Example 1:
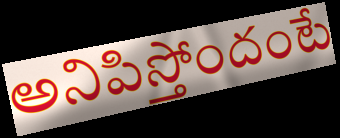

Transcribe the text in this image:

అనిపిస్తోందంటే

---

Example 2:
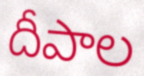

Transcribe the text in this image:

దీపాల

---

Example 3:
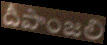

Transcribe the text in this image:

దీపాంజలి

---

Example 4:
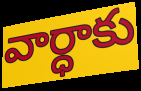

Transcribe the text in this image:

వార్ధాకు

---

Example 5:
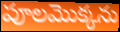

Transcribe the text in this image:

పూలమొక్కను